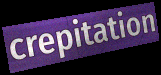
crepitation